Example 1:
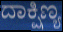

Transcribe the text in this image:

ದಾಕ್ಷಿಣ್ಯ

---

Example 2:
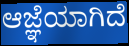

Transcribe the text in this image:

ಆಜ್ಞೆಯಾಗಿದೆ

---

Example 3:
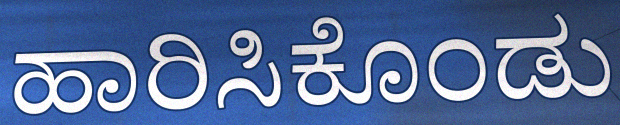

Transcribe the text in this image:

ಹಾರಿಸಿಕೊಂಡು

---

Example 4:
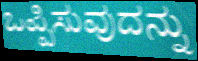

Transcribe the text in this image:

ಒಪ್ಪಿಸುವುದನ್ನು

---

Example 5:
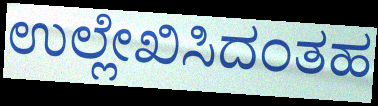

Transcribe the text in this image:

ಉಲ್ಲೇಖಿಸಿದಂತಹ